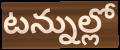
టన్నుల్లో